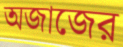
অজাজের